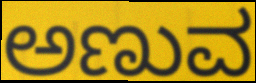
ಅಣುವ